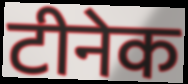
टीनेक